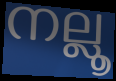
നല്ലൂ